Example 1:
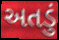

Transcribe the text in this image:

અતડું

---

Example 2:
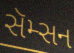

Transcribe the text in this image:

સૅમ્સન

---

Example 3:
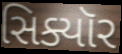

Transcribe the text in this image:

સિક્યૉર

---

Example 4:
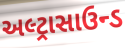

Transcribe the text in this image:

અલ્ટ્રાસાઉન્ડ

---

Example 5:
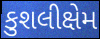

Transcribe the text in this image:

કુશલીક્ષેમ